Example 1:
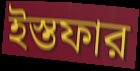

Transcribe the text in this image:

ইস্তফার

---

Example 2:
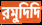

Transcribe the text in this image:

রমুদিদি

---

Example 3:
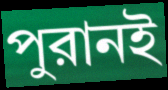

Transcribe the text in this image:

পুরানই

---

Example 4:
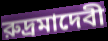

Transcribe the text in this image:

রুদ্রমাদেবী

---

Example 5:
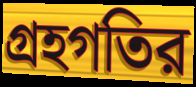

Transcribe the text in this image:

গ্রহগতির